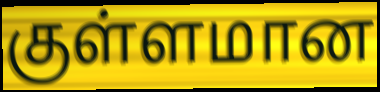
குள்ளமான